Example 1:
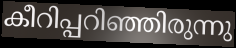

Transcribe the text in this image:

കീറിപ്പറിഞ്ഞിരുന്നു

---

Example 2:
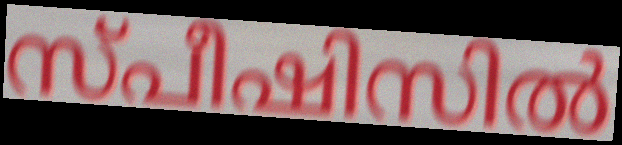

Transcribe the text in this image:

സ്പീഷിസിൽ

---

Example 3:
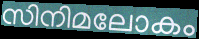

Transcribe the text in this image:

സിനിമലോകം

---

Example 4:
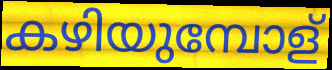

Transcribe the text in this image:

കഴിയുമ്പോള്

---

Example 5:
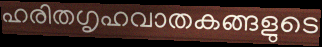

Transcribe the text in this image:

ഹരിതഗൃഹവാതകങ്ങളുടെ